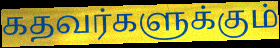
கதவர்களுக்கும்